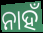
ନାହଁ